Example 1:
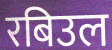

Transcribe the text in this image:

रबिउल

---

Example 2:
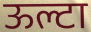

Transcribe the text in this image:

ऊल्टा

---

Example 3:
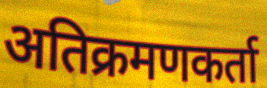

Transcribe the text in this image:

अतिक्रमणकर्ता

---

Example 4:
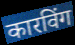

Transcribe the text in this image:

कारविंग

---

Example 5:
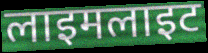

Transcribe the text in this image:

लाइमलाइट